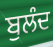
ਬੁਲੰਦ